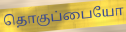
தொகுப்பையோ